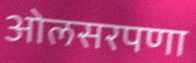
ओलसरपणा